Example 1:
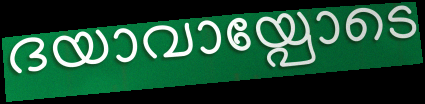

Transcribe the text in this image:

ദയാവായ്പോടെ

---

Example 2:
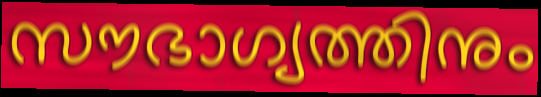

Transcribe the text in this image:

സൗഭാഗ്യത്തിനും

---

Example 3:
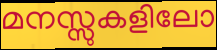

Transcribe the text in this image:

മനസ്സുകളിലോ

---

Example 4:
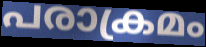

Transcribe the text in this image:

പരാക്രമം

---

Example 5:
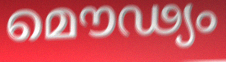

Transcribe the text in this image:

മൌഢ്യം